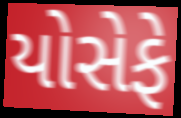
યોસેફે